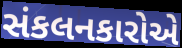
સંકલનકારોએ